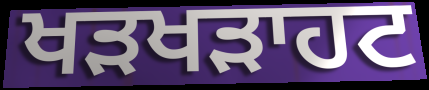
ਖੜਖੜਾਹਟ